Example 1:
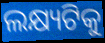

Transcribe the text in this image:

ଲକ୍ଷ୍ୟଟିକୁ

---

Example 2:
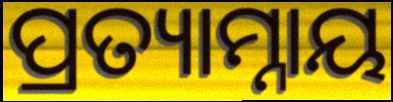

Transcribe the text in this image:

ପ୍ରତ୍ୟାମ୍ନାୟ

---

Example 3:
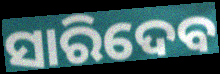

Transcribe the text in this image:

ସାରିଦେବ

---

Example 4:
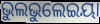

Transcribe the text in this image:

ଭୁଲଭୁଲେଇୟା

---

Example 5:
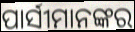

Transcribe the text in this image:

ପାର୍ସୀମାନଙ୍କର